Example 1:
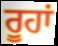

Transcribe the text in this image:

ਰੂਹਾਂ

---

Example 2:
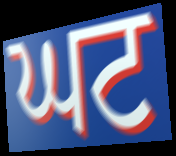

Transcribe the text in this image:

ਘਟ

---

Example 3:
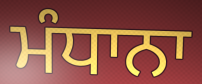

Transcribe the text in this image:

ਮੰਧਾਨਾ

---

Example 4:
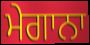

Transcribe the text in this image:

ਮੇਗਾਨਾ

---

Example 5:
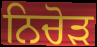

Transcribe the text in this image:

ਨਿਚੋੜ